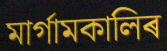
মাৰ্গামকালিৰ